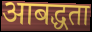
आबद्धता